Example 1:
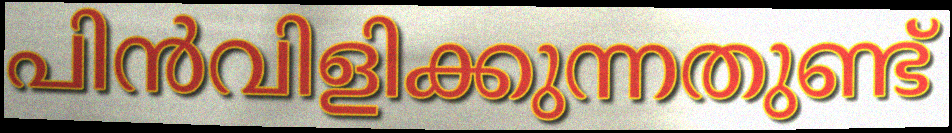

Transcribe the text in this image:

പിൻവിളിക്കുന്നതുണ്ട്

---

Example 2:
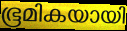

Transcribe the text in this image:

ഭൂമികയായി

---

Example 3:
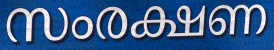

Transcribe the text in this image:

സംരക്ഷണ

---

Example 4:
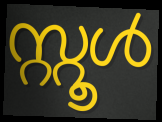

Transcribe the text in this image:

സ്റ്റൂൾ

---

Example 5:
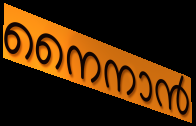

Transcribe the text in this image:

നൈനാൻ